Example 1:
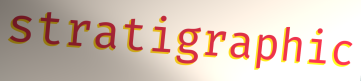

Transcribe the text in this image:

stratigraphic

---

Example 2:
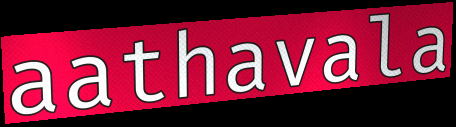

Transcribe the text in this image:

aathavala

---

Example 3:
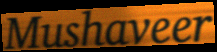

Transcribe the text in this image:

Mushaveer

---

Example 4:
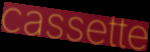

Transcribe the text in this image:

cassette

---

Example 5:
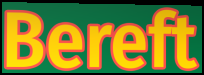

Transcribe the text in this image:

Bereft